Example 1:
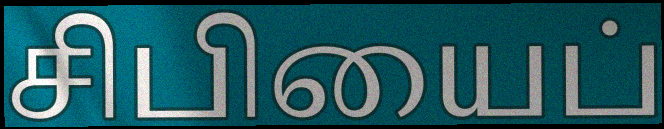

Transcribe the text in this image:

சிபியைப்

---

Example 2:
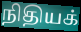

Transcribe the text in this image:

நிதியக்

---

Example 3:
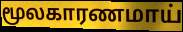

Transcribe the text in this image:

மூலகாரணமாய்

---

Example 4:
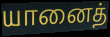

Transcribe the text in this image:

யானைத்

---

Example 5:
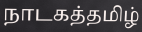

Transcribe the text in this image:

நாடகத்தமிழ்